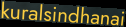
kuralsindhanai